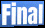
Final